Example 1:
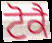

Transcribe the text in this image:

ਟੋਕੈ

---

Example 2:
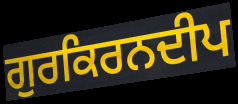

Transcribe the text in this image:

ਗੁਰਕਿਰਨਦੀਪ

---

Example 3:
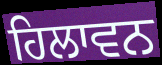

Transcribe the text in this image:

ਹਿਲਾਵਨ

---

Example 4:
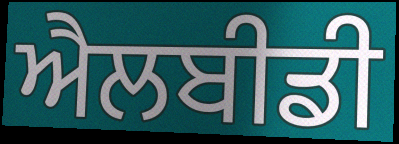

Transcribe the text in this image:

ਐਲਬੀਡੀ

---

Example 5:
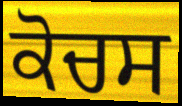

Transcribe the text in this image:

ਕੋਚਸ